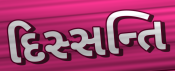
દિસ્સન્તિ